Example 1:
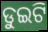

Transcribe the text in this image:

ଡୁଇଟି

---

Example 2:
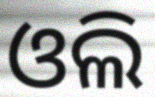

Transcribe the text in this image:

ଓଲି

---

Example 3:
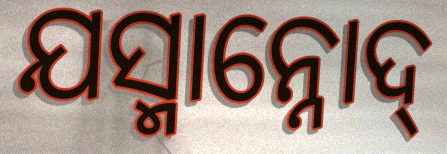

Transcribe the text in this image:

ଯସ୍ମାନ୍ନୋଦ୍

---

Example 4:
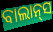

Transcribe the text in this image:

ବାଲାନ୍‌ସ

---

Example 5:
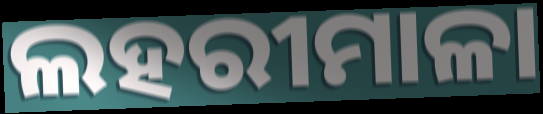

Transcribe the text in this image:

ଲହରୀମାଳା